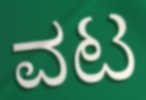
ವಟ